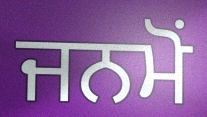
ਜਨਮੋਂ